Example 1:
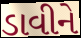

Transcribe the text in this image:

ડાવીને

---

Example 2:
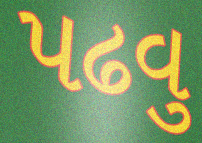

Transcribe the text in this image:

પઢવુ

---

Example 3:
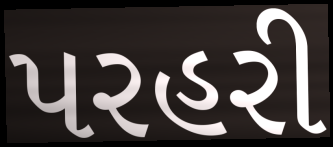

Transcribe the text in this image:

પરહરી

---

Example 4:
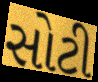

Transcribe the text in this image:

સોટી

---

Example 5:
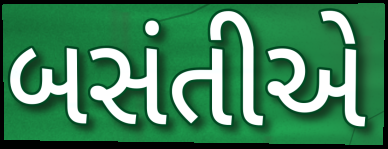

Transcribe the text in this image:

બસંતીએ